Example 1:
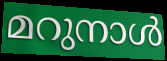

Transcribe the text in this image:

മറുനാൾ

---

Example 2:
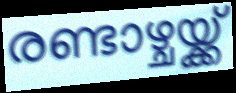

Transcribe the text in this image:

രണ്ടാഴ്ചയ്ക്ക്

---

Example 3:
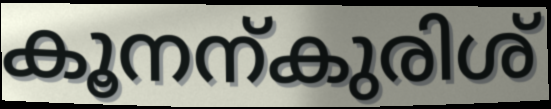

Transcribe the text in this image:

കൂനന്കുരിശ്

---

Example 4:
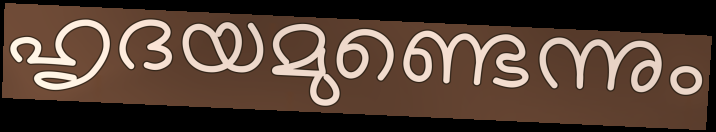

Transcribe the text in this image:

ഹൃദയമുണ്ടെന്നും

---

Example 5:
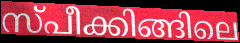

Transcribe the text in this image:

സ്പീക്കിങ്ങിലെ